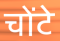
चोंटे